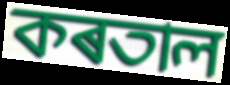
কৰতাল